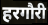
हरगौरी